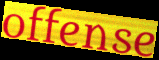
offense